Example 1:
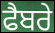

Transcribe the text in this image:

ਫੈਬਰੇ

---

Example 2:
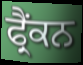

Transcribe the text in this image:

ਫ੍ਰੈਂਕਨ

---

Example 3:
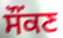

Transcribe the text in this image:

ਸੌਂਕਣ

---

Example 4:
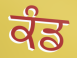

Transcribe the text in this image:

ਕੰਡ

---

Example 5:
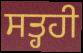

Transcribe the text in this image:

ਸਤ੍ਹਹੀ